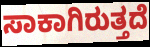
ಸಾಕಾಗಿರುತ್ತದೆ